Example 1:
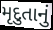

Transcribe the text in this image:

મૃદુતાનું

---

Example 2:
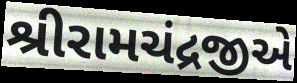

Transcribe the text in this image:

શ્રીરામચંદ્રજીએ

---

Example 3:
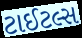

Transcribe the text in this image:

ટાઈટલ્સ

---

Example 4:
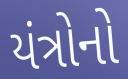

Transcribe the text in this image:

યંત્રોનો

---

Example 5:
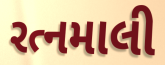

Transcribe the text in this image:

રત્નમાલી